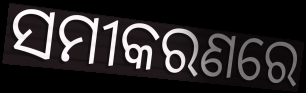
ସମୀକରଣରେ